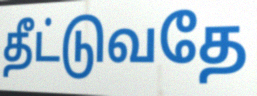
தீட்டுவதே